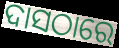
ଦାସଠାରେ